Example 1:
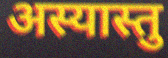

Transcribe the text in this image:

अस्यास्तु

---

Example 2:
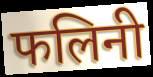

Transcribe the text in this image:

फलिनी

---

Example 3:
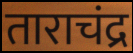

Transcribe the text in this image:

ताराचंद्र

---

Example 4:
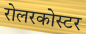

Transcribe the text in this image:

रोलरकोस्टर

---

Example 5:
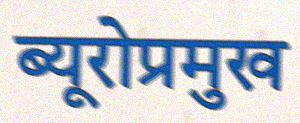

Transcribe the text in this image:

ब्यूरोप्रमुख